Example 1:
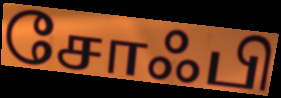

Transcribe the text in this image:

சோஃபி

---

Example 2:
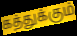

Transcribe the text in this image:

கத்துக்கும்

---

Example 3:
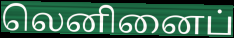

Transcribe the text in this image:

லெனினைப்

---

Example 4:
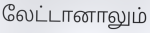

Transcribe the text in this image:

லேட்டானாலும்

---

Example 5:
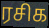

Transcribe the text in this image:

ரசிக